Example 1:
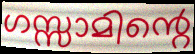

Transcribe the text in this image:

ഗസ്സാമിന്റെ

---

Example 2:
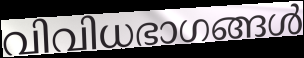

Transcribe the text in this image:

വിവിധഭാഗങ്ങൾ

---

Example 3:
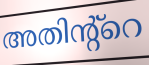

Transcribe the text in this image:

അതിന്റ്റെ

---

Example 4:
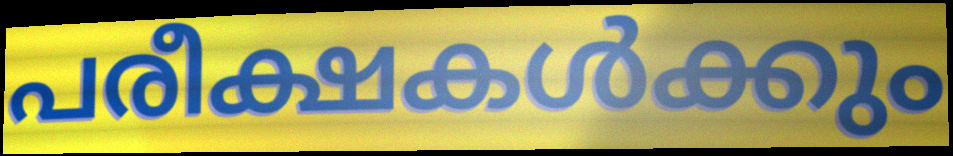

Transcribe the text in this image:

പരീക്ഷകൾക്കും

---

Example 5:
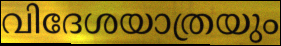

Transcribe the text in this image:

വിദേശയാത്രയും